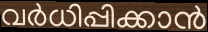
വർധിപ്പിക്കാൻ